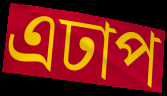
এঢাপ